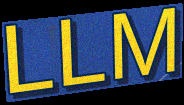
LLM